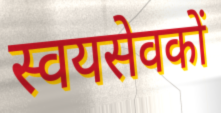
स्वयसेवकों